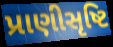
પ્રાણીસૃષ્ટિ